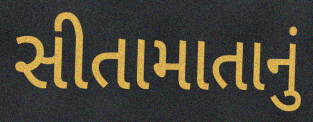
સીતામાતાનું